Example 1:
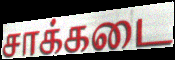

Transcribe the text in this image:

சாக்கடை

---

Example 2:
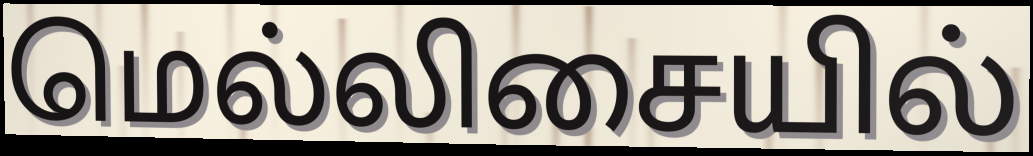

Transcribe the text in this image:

மெல்லிசையில்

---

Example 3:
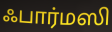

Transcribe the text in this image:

ஃபார்மஸி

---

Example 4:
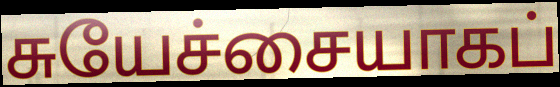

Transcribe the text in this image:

சுயேச்சையாகப்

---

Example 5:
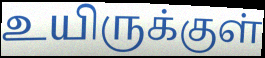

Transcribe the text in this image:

உயிருக்குள்